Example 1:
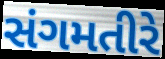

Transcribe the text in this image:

સંગમતીરે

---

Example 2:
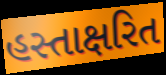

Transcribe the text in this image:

હસ્તાક્ષરિત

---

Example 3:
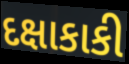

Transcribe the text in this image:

દક્ષાકાકી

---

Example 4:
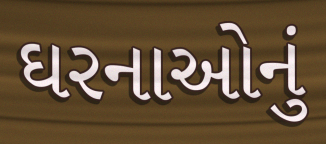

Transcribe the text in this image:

ઘરનાઓનું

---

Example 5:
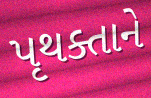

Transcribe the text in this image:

પૃથક્તાને